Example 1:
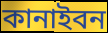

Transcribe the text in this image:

কানাইবন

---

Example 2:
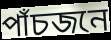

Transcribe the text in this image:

পাঁচজনে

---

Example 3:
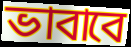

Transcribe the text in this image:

ভাবাবে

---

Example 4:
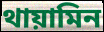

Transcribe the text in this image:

থায়ামিন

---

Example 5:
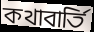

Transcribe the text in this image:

কথাবার্তি